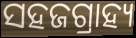
ସହଜଗ୍ରାହ୍ୟ